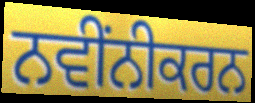
ਨਵੀਂਨੀਕਰਨ